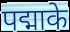
पद्माके